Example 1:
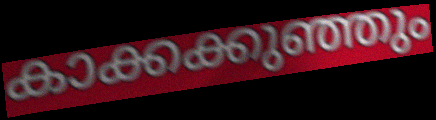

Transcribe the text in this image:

കാക്കക്കുഞ്ഞും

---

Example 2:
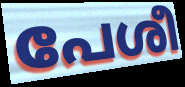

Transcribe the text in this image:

പേശീ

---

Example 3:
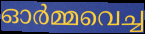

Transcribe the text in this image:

ഓർമ്മവെച്ച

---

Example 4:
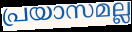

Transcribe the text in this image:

പ്രയാസമല്ല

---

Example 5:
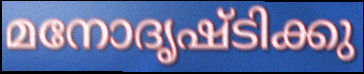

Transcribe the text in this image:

മനോദൃഷ്ടിക്കു